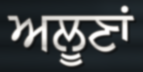
ਅਲੂਣਾਂ